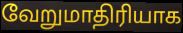
வேறுமாதிரியாக